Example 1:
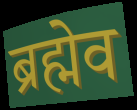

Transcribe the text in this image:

ब्रह्मेव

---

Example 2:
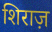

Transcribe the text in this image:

शिराज़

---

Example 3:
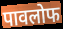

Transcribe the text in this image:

पावलोफ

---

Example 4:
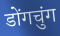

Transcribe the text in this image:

डोंगचुंग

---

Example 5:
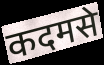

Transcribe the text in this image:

कदमसे